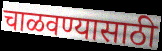
चाळवण्यासाठी